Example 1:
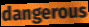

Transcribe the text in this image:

dangerous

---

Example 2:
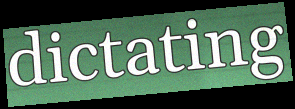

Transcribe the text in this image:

dictating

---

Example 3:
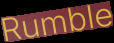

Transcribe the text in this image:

Rumble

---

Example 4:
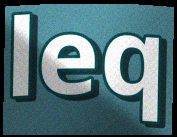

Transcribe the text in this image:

leq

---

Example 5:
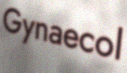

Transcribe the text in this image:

Gynaecol